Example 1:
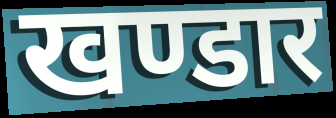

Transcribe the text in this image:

खण्डार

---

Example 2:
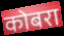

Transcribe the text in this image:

कोबरा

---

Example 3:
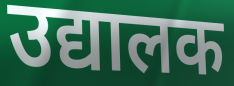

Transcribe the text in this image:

उद्यालक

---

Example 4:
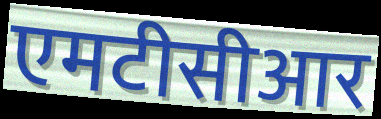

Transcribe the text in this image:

एमटीसीआर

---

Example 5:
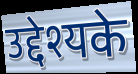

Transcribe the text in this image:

उद्देश्यके